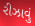
રીઝાવું